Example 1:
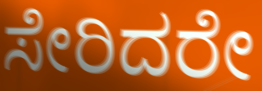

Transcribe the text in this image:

ಸೇರಿದರೇ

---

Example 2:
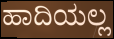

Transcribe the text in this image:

ಹಾದಿಯಲ್ಲ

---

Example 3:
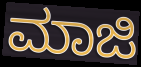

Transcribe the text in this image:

ಮಾಜಿ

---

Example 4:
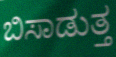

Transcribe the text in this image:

ಬಿಸಾಡುತ್ತ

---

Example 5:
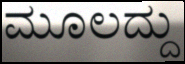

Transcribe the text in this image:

ಮೂಲದ್ದು